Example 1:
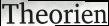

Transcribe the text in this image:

Theorien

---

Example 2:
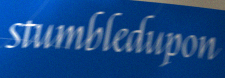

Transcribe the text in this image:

stumbledupon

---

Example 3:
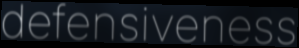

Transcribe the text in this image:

defensiveness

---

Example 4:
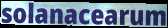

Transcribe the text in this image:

solanacearum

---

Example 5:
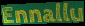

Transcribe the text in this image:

Ennallu